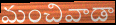
మంచివాడా